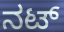
ನಟ್